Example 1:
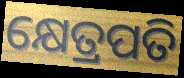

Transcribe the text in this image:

କ୍ଷେତ୍ରପତି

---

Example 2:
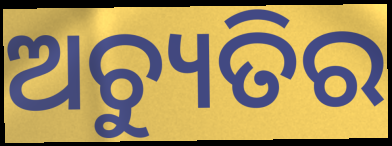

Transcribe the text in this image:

ଅଚ୍ୟୁତିର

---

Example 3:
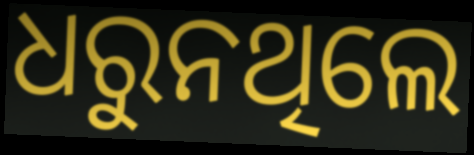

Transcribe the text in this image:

ଧରୁନଥିଲେ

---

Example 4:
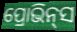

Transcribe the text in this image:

ପ୍ରୋଭିନ୍‌ସ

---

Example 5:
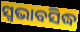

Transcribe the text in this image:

ସ୍ଵଭାବସିଦ୍ଧ